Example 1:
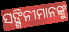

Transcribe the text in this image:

ସଙ୍ଗିନୀମାନଙ୍କୁ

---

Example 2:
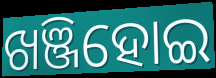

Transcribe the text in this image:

ଖଞ୍ଜିହୋଇ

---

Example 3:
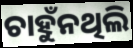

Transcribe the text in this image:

ଚାହୁଁନଥିଲି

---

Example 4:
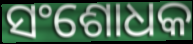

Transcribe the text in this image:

ସଂଶୋଧକ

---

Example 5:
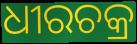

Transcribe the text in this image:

ଧୀରଚକ୍ର